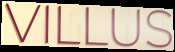
VILLUS